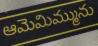
ఆమెమిమ్మును